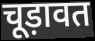
चूड़ावत